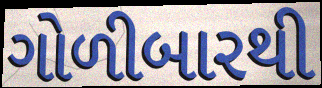
ગોળીબારથી